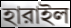
হারাইল